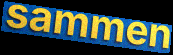
sammen